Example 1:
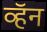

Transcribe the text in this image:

व्हॅन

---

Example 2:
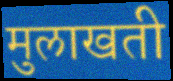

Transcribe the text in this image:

मुलाखती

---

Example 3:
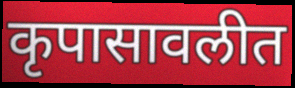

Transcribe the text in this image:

कृपासावलीत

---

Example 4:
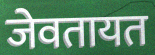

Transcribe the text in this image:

जेवतायत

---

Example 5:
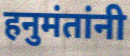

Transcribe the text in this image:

हनुमंतांनी